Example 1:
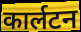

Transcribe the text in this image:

कार्लटन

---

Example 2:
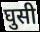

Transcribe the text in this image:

घुसी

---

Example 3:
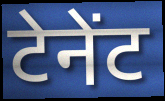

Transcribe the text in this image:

टेनेंट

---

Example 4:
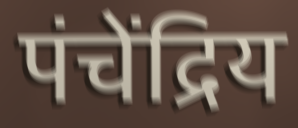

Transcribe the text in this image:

पंचेंद्रिय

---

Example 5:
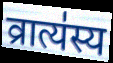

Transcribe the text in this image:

व्रात्य॑स्य